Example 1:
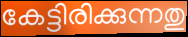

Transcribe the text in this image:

കേട്ടിരിക്കുന്നതു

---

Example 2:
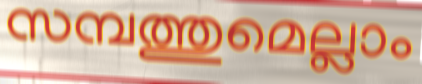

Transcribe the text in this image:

സമ്പത്തുമെല്ലാം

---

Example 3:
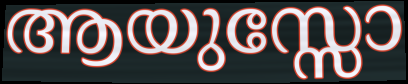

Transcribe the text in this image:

ആയുസ്സോ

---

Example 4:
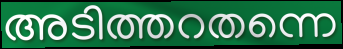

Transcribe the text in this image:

അടിത്തറതന്നെ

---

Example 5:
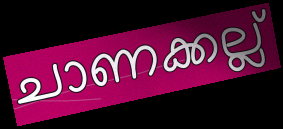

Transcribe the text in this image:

ചാണക്കല്ല്